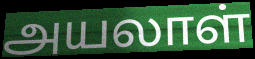
அயலாள்